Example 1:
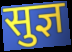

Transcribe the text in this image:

सुज्ञ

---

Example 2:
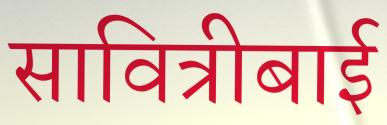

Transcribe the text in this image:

सावित्रीबाई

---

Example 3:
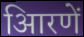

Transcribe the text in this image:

आिरणें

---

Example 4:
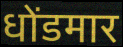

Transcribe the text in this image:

धोंडमार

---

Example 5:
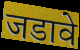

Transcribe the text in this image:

जडावे